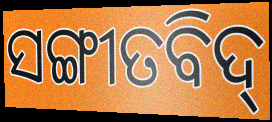
ସଙ୍ଗୀତବିଦ୍